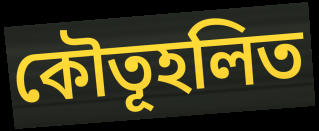
কৌতূহলিত